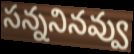
సన్ననినవ్వు